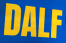
DALF